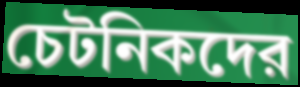
চেটনিকদের